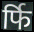
र्फि